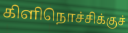
கிளிநொச்சிக்குச்